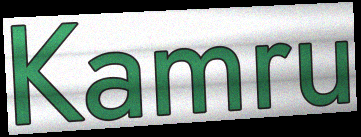
Kamru